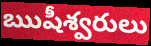
ఋషీశ్వరులు